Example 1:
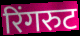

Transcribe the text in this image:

रिंगरुट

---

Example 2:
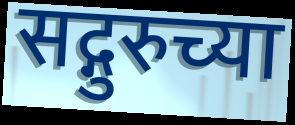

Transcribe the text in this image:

सद्गुरुच्या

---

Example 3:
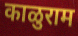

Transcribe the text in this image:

काळुराम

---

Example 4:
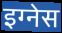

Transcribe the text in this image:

इग्नेस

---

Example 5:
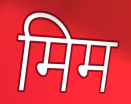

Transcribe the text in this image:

मिम